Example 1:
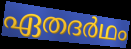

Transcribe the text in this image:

ഏതദർഥം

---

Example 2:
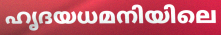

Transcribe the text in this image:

ഹൃദയധമനിയിലെ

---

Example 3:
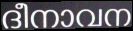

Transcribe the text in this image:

ദീനാവന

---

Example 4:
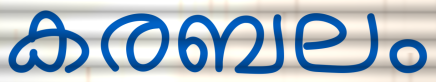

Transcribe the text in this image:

കരബലം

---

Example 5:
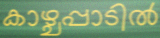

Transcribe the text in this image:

കാഴ്ചപ്പാടിൽ